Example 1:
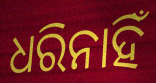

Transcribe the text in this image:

ଧରିନାହିଁ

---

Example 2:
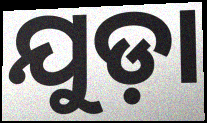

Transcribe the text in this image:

ଯୁଡ଼ା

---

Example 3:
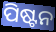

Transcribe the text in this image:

ପିଷ୍ଟନ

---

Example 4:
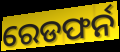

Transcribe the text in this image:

ରେଡଫର୍ନ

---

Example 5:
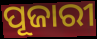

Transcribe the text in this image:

ପୂଜାରୀ